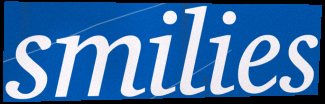
smilies